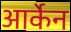
आर्केन